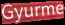
Gyurme